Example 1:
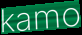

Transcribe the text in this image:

kamo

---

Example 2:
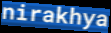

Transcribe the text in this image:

nirakhya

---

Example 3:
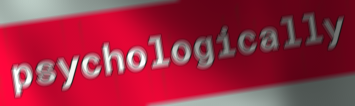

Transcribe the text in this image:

psychologically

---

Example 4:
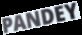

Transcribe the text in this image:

PANDEY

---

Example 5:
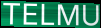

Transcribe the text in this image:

TELMU